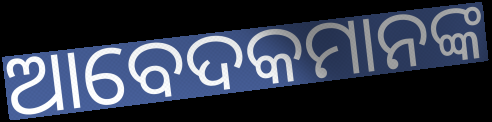
ଆବେଦକମାନଙ୍କ